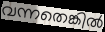
വന്നതെങ്കിൽ